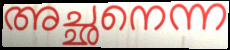
അച്ഛനെന്ന